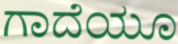
ಗಾದೆಯೂ